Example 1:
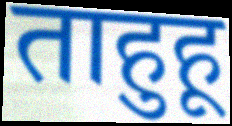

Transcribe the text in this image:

ताहुहू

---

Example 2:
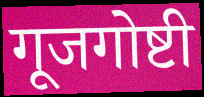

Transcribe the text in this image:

गूजगोष्टी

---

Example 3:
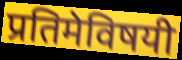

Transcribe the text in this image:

प्रतिमेविषयी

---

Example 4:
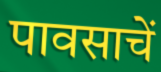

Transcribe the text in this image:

पावसाचें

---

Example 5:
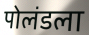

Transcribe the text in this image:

पोलंडला